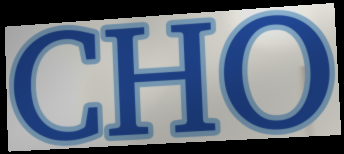
CHO